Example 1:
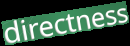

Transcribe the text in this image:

directness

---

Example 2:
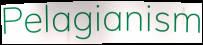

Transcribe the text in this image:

Pelagianism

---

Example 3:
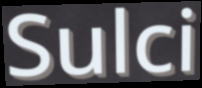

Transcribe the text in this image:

Sulci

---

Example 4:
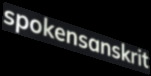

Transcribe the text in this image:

spokensanskrit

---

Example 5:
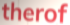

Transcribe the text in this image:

therof